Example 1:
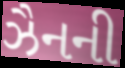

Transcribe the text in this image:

ઝૈનની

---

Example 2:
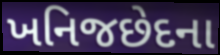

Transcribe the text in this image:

ખનિજછેદના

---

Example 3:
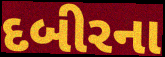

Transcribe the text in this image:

દબીરના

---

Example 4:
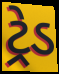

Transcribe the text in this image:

ટ્રેડ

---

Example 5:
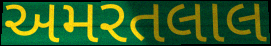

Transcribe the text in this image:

અમરતલાલ